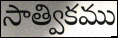
సాత్వికము